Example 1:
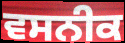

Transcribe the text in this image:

ਵਸਨੀਕ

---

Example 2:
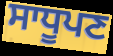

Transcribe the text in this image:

ਸਾਧੂਪਣ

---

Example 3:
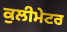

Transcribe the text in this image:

ਕੁਲੀਮੇਟਰ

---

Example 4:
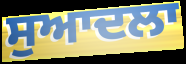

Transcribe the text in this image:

ਸੁਆਦਲਾ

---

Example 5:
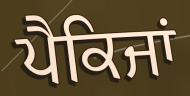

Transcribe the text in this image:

ਪੈਕਿਜਾਂ